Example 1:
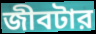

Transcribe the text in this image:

জীবটার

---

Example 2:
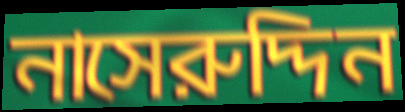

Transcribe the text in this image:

নাসেরুদ্দিন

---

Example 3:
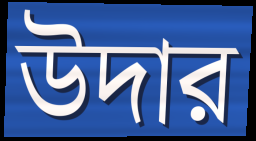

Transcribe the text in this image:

উদার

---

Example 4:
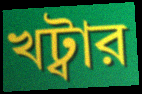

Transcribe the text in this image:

খট্বার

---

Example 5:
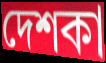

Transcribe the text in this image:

দেশকা